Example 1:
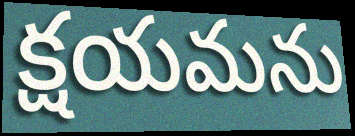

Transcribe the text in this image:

క్షయమను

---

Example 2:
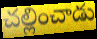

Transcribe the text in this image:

చల్లించాడు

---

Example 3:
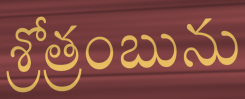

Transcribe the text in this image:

శ్రోత్రంబును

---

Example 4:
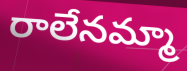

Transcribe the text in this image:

రాలేనమ్మా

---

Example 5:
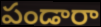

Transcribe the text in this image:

పండారా